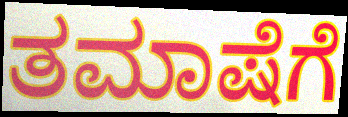
ತಮಾಷೆಗೆ